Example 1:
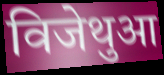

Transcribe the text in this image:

विजेथुआ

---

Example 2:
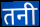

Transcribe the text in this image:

तनी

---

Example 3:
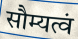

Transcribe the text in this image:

सौम्यत्वं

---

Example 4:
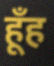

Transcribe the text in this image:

हूँह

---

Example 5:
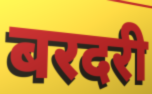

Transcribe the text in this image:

बरदरी